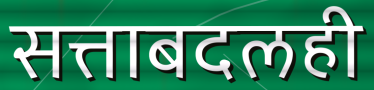
सत्ताबदलही